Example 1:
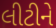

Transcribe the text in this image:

લીટીને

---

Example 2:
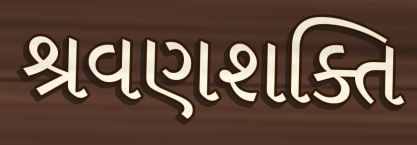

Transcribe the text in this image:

શ્રવણશક્તિ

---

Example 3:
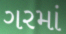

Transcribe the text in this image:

ગરમાં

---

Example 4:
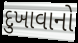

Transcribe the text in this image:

દુખાવાનો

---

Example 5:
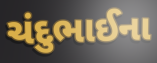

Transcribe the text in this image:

ચંદુભાઈના